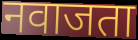
नवाजता